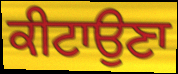
ਕੀਟਾਉਣਾ